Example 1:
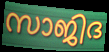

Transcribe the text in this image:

സാജിദ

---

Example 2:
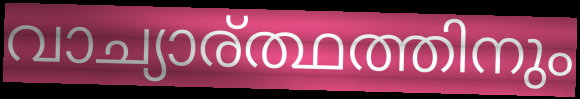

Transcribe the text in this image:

വാച്യാര്ത്ഥത്തിനും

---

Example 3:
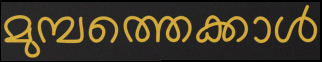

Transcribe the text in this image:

മുമ്പത്തെക്കാൾ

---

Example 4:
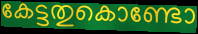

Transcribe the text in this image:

കേട്ടതുകൊണ്ടോ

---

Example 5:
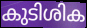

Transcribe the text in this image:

കുടിശിക